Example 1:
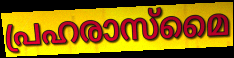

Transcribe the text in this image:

പ്രഹരാസ്മൈ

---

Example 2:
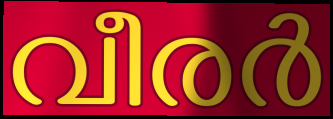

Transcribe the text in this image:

വീരർ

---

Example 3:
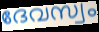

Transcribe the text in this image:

ദേവസ്വം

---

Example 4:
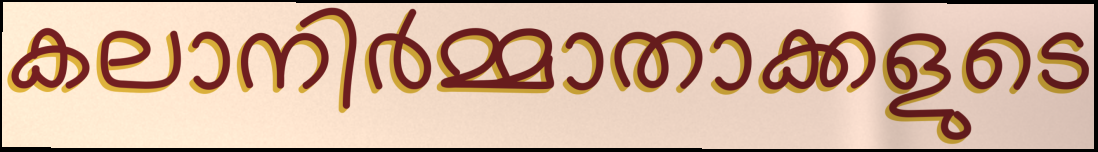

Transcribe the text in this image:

കലാനിർമ്മാതാക്കളുടെ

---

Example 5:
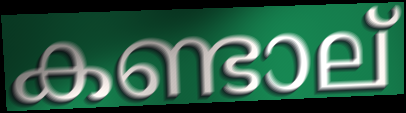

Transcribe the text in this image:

കണ്ടാല്